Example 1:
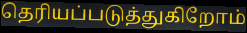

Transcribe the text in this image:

தெரியப்படுத்துகிறோம்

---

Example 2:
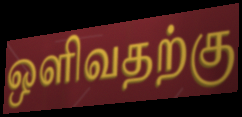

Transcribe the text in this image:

ஒளிவதற்கு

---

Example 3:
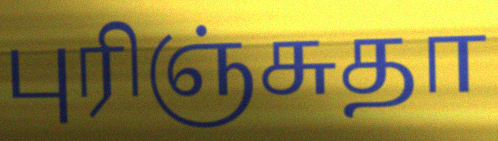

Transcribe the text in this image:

புரிஞ்சுதா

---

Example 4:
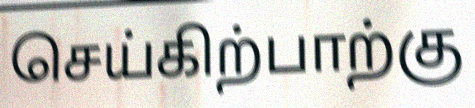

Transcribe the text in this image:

செய்கிற்பாற்கு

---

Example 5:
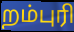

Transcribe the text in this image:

றம்புரி